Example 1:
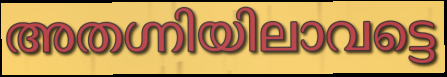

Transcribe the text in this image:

അതഗ്നിയിലാവട്ടെ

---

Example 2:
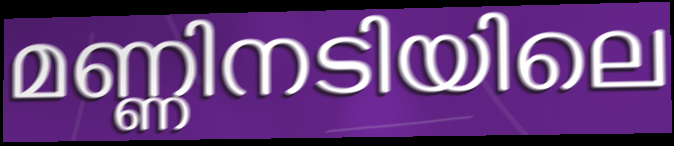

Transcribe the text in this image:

മണ്ണിനടിയിലെ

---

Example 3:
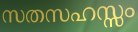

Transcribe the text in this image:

സതസഹസ്സം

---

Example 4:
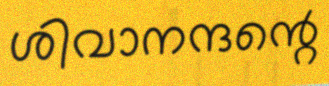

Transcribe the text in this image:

ശിവാനന്ദന്റെ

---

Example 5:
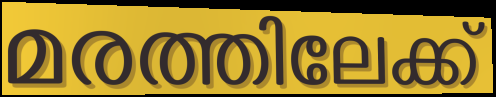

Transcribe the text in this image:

മരത്തിലേക്ക്